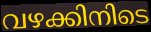
വഴക്കിനിടെ